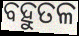
ବହୁତଳ